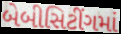
બેબીસિટીંગમાં